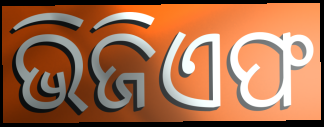
ଭିଜିଏଫ